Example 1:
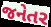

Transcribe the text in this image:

જનેતર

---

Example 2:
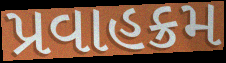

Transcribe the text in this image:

પ્રવાહક્રમ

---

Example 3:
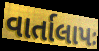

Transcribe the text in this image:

વાર્તાલાપઃ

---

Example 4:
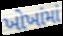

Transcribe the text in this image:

ખોખાંમાં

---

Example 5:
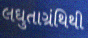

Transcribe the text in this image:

લઘુતાગ્રંથિથી